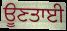
ਊਣਤਾਈ